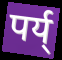
पर्य्